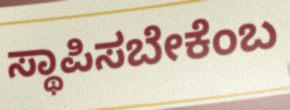
ಸ್ಥಾಪಿಸಬೇಕೆಂಬ